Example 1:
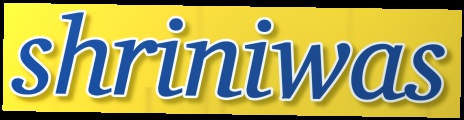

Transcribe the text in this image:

shriniwas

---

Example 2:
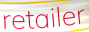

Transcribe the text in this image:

retailer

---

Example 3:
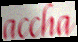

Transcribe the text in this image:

accha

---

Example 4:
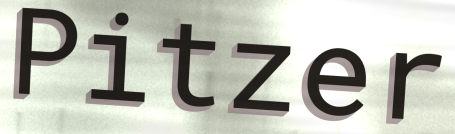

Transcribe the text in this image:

Pitzer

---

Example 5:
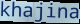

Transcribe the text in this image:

khajina